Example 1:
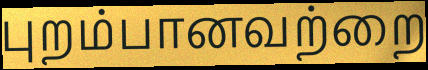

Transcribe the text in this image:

புறம்பானவற்றை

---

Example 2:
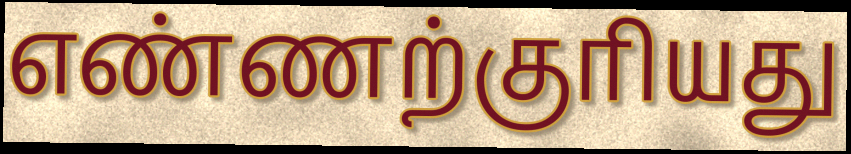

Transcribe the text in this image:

எண்ணற்குரியது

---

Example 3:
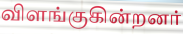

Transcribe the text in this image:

விளங்குகின்றனர்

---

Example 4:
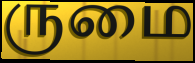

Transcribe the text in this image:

ருமை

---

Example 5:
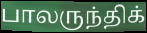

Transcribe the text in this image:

பாலருந்திக்